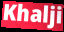
Khalji